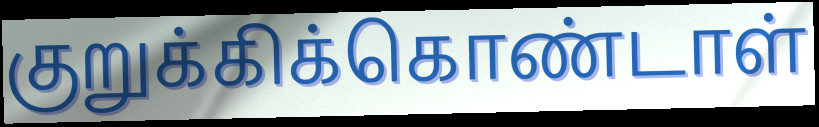
குறுக்கிக்கொண்டாள்